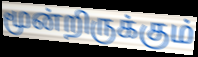
மூன்றிருக்கும்